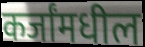
कर्जांमधील